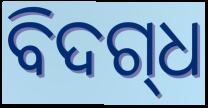
ବିଦଗ୍‍ଧ